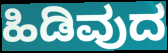
ಹಿಡಿವುದ